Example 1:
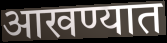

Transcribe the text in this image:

आखण्यात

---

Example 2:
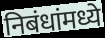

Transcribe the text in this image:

निबंधांमध्ये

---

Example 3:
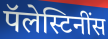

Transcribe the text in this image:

पॅलेस्टिनींस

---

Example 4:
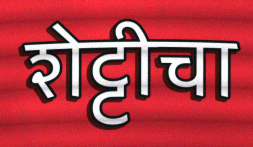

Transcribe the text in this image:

शेट्टीचा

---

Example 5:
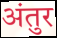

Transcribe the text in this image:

अंतुर